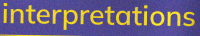
interpretations